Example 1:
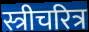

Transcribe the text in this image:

स्त्रीचरित्र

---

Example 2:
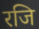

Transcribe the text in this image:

रजि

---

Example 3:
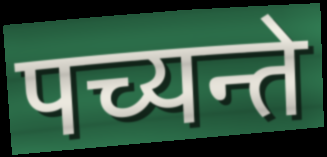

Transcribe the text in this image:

पच्यन्ते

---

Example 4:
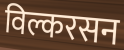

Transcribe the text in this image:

विल्करसन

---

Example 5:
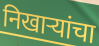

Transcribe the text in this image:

निखार्‍यांचा